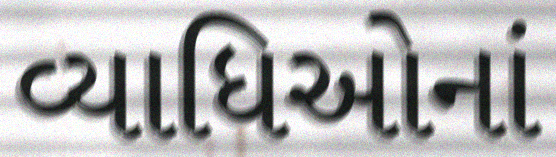
વ્યાધિઓનાં